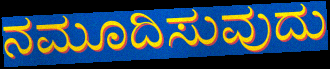
ನಮೂದಿಸುವುದು